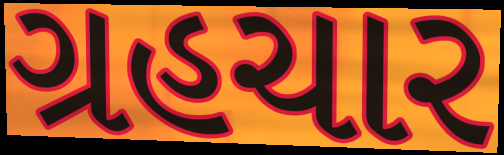
ગ્રહચાર